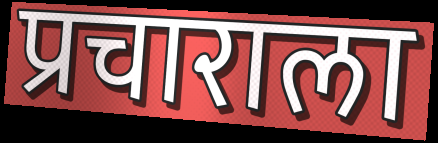
प्रचाराला